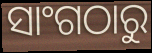
ସାଂଗଠାରୁ